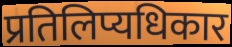
प्रतिलिप्यधिकार